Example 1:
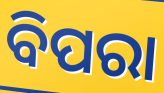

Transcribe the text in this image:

ବିପରା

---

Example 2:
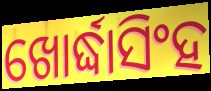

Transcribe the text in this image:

ଖୋର୍ଦ୍ଧାସିଂହ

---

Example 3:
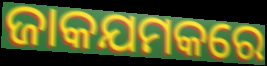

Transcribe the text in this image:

ଜାକଯମକରେ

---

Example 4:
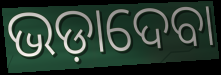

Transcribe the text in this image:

ଭଡ଼ାଦେବା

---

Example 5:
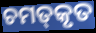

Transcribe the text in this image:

ଚମତ୍‌କୃତ